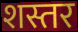
शस्तर